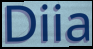
Diia